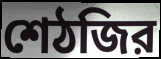
শেঠজির